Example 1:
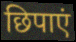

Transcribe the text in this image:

छिपाएं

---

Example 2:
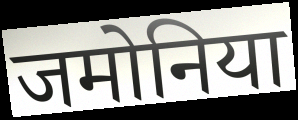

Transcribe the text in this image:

जमोनिया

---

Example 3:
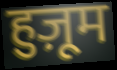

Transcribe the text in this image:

हुज़ूम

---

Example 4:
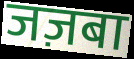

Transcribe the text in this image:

जज़बा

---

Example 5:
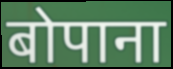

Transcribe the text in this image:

बोपाना